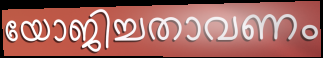
യോജിച്ചതാവണം